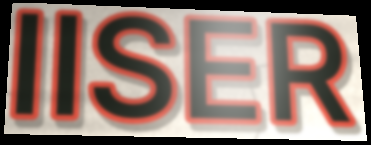
IISER